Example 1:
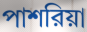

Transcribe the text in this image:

পাশরিয়া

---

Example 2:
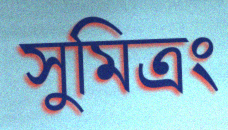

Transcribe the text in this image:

সুমিত্রং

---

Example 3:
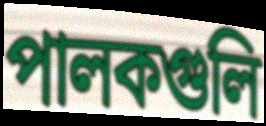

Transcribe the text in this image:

পালকগুলি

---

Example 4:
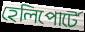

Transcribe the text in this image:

হেলিপোর্টে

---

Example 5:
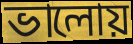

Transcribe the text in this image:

ভালোয়